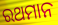
ରଥମାନ